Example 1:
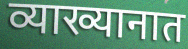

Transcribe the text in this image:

व्याख्यानात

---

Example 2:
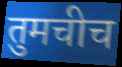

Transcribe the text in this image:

तुमचीच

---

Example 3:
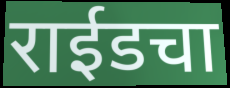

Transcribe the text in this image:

राईडचा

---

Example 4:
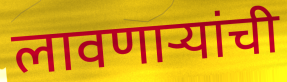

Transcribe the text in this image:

लावणाऱ्यांची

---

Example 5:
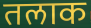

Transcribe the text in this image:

तलाक